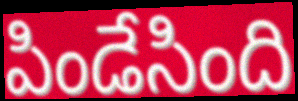
పిండేసింది